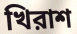
খিরাশ